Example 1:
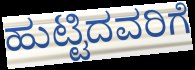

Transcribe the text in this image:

ಹುಟ್ಟಿದವರಿಗೆ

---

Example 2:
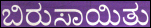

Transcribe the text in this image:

ಬಿರುಸಾಯಿತು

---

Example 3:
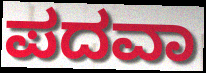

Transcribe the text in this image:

ಪದವಾ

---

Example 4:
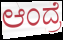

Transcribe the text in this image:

ಆಂದ್ರೆ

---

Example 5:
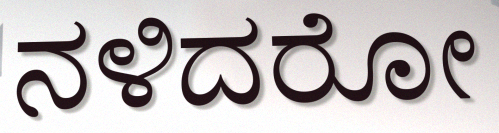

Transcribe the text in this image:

ನಳಿದರೋ